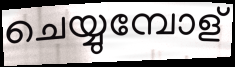
ചെയ്യുമ്പോള്